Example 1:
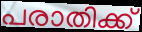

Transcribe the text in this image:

പരാതിക്ക്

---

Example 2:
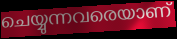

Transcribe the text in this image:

ചെയ്യുന്നവരെയാണ്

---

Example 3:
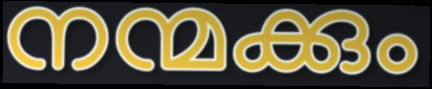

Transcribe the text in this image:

നന്മക്കും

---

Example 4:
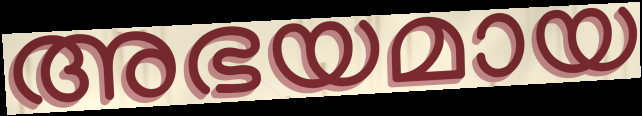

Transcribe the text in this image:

അഭയമായ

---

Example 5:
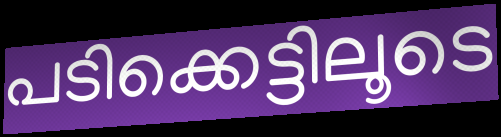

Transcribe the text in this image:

പടിക്കെട്ടിലൂടെ